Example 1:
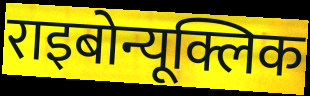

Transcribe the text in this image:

राइबोन्यूक्लिक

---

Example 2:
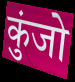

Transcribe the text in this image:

कुंजो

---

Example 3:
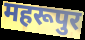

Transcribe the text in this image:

महरूपुर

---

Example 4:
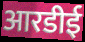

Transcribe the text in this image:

आरडीई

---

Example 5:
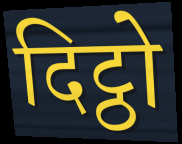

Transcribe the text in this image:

दिट्ठो